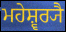
ਮਹੇਸ਼੍ਵਰ੍ਯੈ